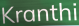
Kranthi